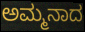
ಅಮ್ಮನಾದ